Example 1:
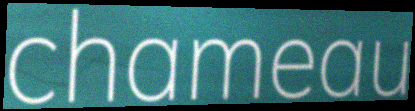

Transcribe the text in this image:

chameau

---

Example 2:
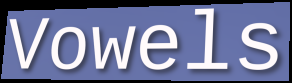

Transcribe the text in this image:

Vowels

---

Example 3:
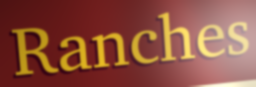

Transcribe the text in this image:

Ranches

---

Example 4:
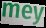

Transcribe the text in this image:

mey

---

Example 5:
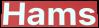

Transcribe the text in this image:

Hams